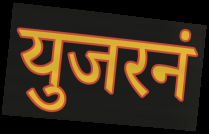
युजरनं